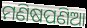
ମଣିଷପଣିଆ